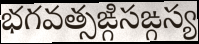
భగవత్సఙ్గిసఙ్గస్య